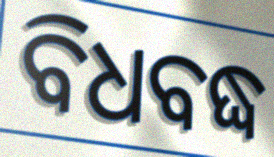
ବିଧବଦ୍ଧ